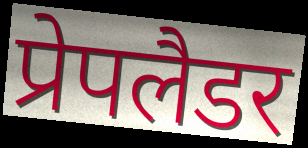
प्रेपलैडर